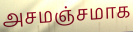
அசமஞ்சமாக